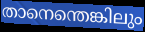
താനെന്തെങ്കിലും